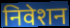
निवेशन